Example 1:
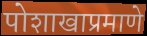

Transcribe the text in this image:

पोशाखाप्रमाणे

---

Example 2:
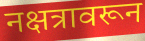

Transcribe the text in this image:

नक्षत्रावरून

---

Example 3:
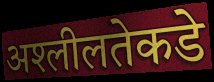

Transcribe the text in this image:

अश्लीलतेकडे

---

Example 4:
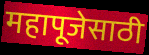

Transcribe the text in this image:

महापूजेसाठी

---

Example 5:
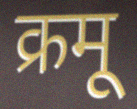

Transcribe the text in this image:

क्रमू